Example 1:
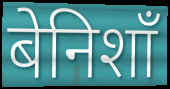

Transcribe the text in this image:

बेनिशाँ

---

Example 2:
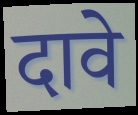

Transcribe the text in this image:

दावे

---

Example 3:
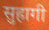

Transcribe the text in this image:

सुहागी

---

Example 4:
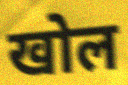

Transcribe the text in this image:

खोल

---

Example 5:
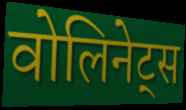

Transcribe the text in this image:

वोलिनेट्स